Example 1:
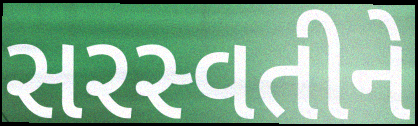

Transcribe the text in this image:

સરસ્વતીને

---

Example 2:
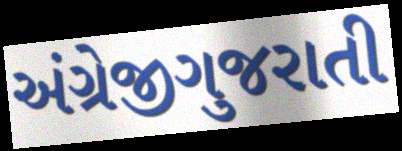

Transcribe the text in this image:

અંગ્રેજીગુજરાતી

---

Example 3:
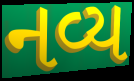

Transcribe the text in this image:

નવ્ય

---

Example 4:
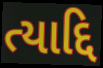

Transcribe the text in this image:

ત્યાદ્દિ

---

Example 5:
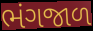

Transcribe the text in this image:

ભંગજાળ